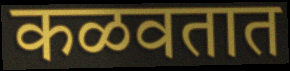
कळवतात